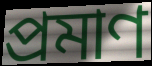
প্রমাণ